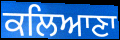
ਕਲਿਆਣਾ